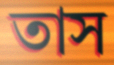
তাস